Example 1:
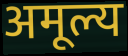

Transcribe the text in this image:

अमूल्य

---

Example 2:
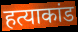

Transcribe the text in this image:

हत्याकांड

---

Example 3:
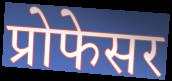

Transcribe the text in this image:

प्रोफेसर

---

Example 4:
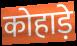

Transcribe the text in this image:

कोहाड़े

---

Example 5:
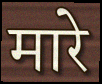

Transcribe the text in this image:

मारे